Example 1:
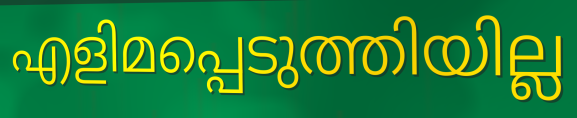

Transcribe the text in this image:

എളിമപ്പെടുത്തിയില്ല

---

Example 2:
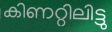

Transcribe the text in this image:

കിണറ്റിലിട്ടു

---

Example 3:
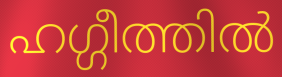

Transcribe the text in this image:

ഹഗ്ഗീത്തിൽ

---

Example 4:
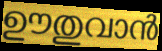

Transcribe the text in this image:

ഊതുവാൻ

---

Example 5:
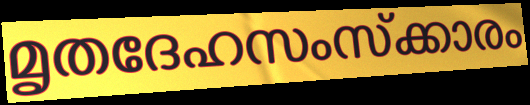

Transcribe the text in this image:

മൃതദേഹസംസ്‌ക്കാരം